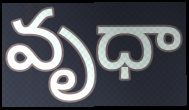
వృధా